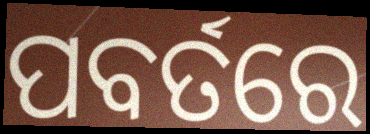
ପବର୍ତରେ